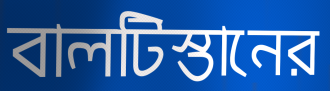
বালটিস্তানের